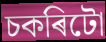
চকৰিটো